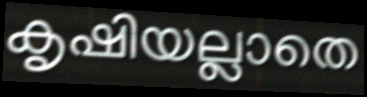
കൃഷിയല്ലാതെ